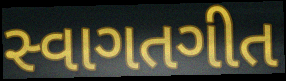
સ્વાગતગીત